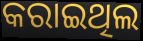
କରାଇଥିଲ